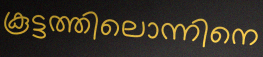
കൂട്ടത്തിലൊന്നിനെ